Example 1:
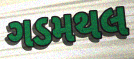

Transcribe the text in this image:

ગડમથલ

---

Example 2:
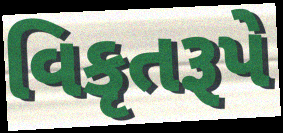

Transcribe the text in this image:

વિકૃતરૂપે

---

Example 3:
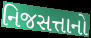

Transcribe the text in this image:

નિજસત્તાનો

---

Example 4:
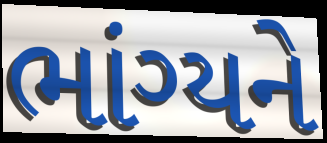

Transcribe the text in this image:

ભાંગ્યને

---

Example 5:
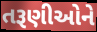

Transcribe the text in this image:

તરૂણીઓને